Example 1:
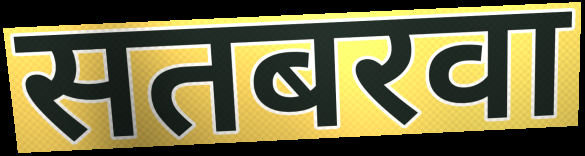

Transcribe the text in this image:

सतबरवा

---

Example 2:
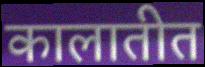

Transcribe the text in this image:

कालातीत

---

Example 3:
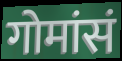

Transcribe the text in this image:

गोमांसं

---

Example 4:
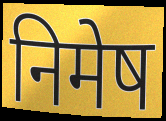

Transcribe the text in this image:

निमेष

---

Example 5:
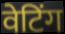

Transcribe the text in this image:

वेटिंग